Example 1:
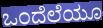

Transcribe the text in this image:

ಒಂದೆಲೆಯೂ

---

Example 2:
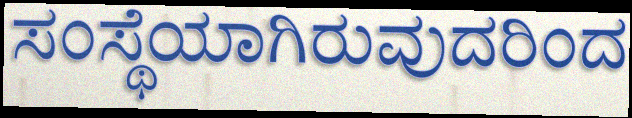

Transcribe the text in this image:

ಸಂಸ್ಥೆಯಾಗಿರುವುದರಿಂದ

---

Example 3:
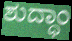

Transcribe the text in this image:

ಶುದ್ಧಾಂ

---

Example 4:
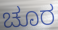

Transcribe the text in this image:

ಚೂರ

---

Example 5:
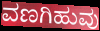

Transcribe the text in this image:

ವಣಗಿಹುವು